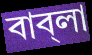
বাব্‌লা